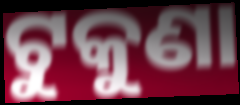
ଟୁକୁଣା